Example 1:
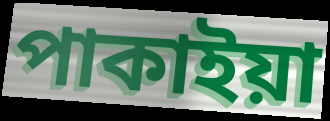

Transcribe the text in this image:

পাকাইয়া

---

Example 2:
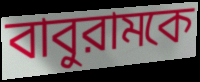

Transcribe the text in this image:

বাবুরামকে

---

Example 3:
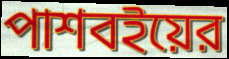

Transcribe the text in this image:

পাশবইয়ের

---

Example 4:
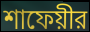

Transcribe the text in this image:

শাফেয়ীর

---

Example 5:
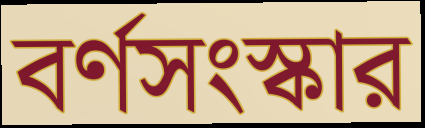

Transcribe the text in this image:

বর্ণসংস্কার